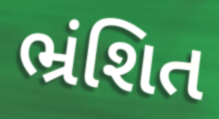
ભ્રંશિત